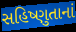
સહિષ્ણુતાનાં